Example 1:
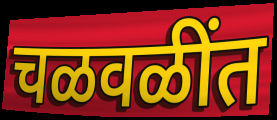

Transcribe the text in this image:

चळवळींत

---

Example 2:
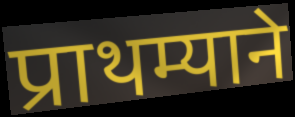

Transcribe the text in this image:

प्राथम्याने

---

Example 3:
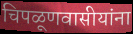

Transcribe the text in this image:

चिपळूणवासीयांना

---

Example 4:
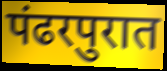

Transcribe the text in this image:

पंढरपुरात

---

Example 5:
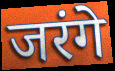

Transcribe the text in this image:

जरंगे